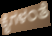
ಕೈಗಳಂತೆ